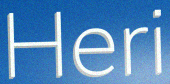
Heri